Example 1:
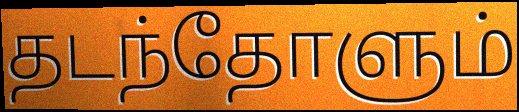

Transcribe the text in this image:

தடந்தோளும்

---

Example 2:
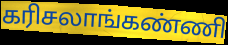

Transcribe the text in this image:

கரிசலாங்கண்ணி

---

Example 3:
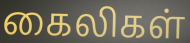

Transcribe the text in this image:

கைலிகள்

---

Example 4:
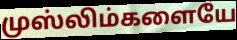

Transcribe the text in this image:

முஸ்லிம்களையே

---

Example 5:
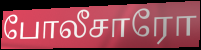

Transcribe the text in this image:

போலீசாரோ